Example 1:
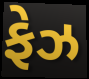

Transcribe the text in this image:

ફેઝ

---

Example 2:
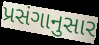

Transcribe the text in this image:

પ્રસંગાનુસાર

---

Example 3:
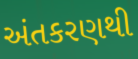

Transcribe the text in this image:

અંતકરણથી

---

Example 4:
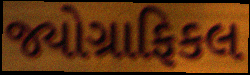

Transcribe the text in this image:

જ્યોગ્રાફિકલ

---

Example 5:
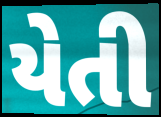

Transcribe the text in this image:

યેતી